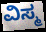
ವಿಸ್ಮ